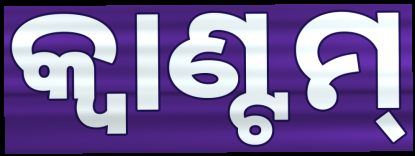
କ୍ୱାଣ୍ଟମ୍